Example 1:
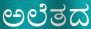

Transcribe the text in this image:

ಅಲೆತದ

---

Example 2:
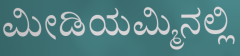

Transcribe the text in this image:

ಮೀಡಿಯಮ್ಮಿನಲ್ಲಿ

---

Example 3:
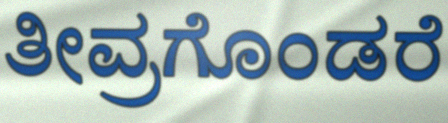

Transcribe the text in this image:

ತೀವ್ರಗೊಂಡರೆ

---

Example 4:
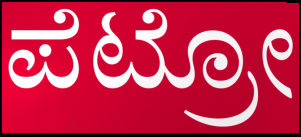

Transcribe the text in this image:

ಪೆಟ್ರೋ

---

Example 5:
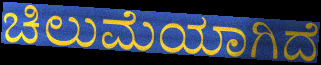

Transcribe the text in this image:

ಚಿಲುಮೆಯಾಗಿದೆ